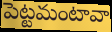
పెట్టమంటావా